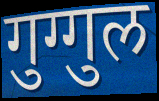
गुग्गुल